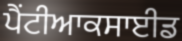
ਪੈਂਟੀਆਕਸਾਈਡ